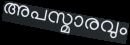
അപസ്മാരവും